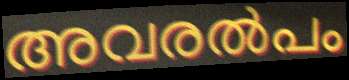
അവരൽപം